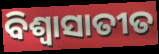
ବିଶ୍ୱାସାତୀତ